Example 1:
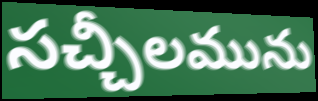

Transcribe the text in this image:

సచ్చీలమును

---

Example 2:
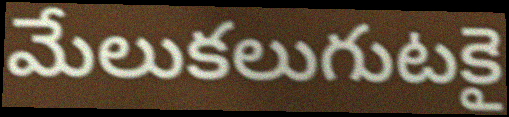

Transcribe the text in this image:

మేలుకలుగుటకై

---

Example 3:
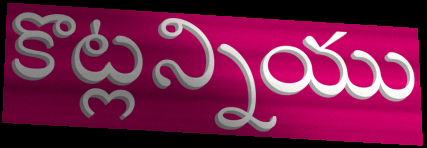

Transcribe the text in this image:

కొట్లన్నియు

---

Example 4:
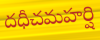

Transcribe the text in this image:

దధీచమహర్షి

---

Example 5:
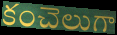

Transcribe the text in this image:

కంచెలుగా